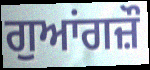
ਗੁਆਂਗਜ਼ੌ